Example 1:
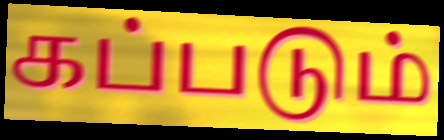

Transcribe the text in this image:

கப்படும்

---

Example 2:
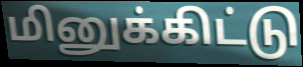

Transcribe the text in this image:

மினுக்கிட்டு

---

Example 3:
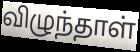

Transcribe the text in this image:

விழுந்தாள்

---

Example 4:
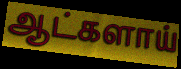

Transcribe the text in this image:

ஆட்களாய்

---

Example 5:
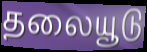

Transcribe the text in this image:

தலையூடு